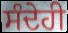
ਸੰਦੇਹੀ